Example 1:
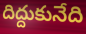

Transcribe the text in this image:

దిద్దుకునేది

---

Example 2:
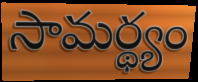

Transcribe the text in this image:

సామర్థ్యం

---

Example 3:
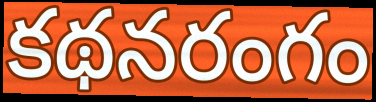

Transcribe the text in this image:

కథనరంగం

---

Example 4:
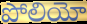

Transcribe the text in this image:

పోలియో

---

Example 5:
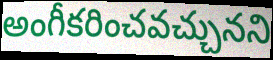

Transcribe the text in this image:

అంగీకరించవచ్చునని